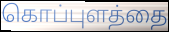
கொப்புளத்தை